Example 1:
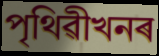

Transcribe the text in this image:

পৃথিৱীখনৰ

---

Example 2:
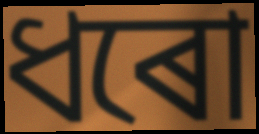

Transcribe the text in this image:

ধৰো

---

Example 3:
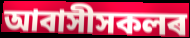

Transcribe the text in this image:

আবাসীসকলৰ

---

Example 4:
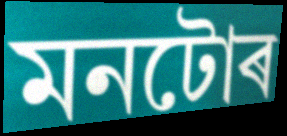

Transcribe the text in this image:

মনটোৰ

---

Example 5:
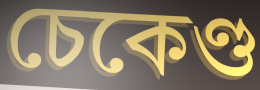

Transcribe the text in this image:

চেকেণ্ড